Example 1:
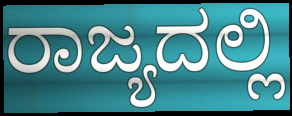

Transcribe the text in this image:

ರಾಜ್ಯದಲ್ಲಿ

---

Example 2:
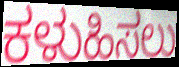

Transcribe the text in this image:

ಕಳುಹಿಸಲು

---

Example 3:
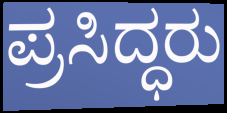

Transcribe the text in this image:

ಪ್ರಸಿದ್ಧರು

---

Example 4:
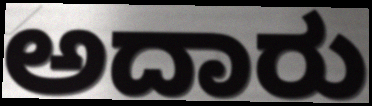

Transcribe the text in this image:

ಅದಾರು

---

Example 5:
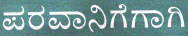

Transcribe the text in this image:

ಪರವಾನಿಗೆಗಾಗಿ